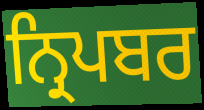
ਨ੍ਰਿਪਬਰ